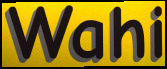
Wahi